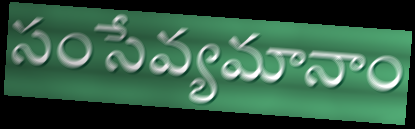
సంసేవ్యమానాం